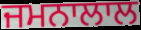
ਜਮਨਾਲਾਲ